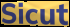
Sicut